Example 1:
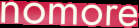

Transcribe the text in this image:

nomore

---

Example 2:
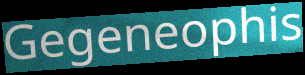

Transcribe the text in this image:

Gegeneophis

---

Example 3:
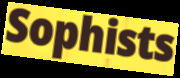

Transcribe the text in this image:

Sophists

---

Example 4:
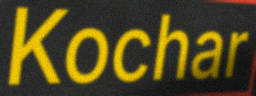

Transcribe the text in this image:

Kochar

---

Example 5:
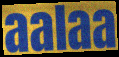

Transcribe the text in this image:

aalaa